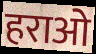
हराओ